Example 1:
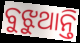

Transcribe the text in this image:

ବୁଝୁଥାନ୍ତି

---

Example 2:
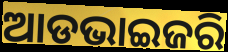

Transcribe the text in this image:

ଆଡଭାଇଜରି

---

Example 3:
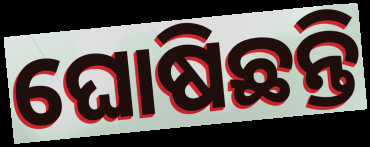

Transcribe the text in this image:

ଘୋଷିଛନ୍ତି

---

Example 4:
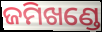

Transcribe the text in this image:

ଜମିଖଣ୍ଡେ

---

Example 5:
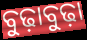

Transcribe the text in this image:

ବୁଢ଼ାବୁଢ଼ା